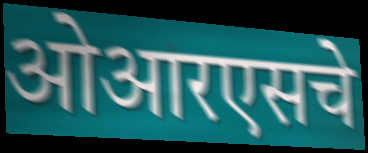
ओआरएसचे